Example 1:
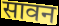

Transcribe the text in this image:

सावन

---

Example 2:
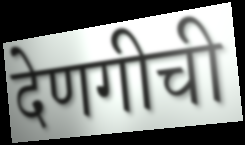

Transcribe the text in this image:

देणगीची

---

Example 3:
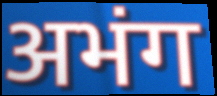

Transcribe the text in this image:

अभंग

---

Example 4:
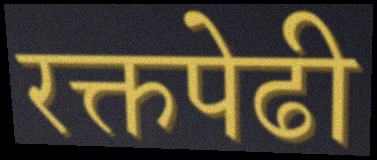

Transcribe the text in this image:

रक्तपेढी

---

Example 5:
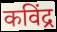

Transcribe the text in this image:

कविंद्र